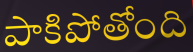
పాకిపోతోంది